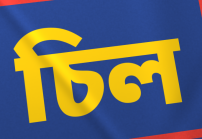
চিল